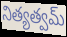
నిత్యత్వమ్